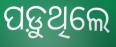
ପଡ଼ୁଥିଲେ